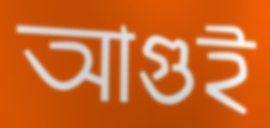
আগুই